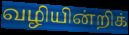
வழியின்றிக்